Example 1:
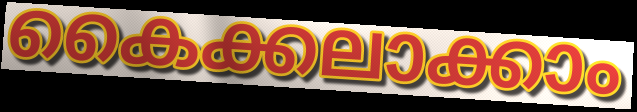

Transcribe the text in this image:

കൈക്കലാക്കാം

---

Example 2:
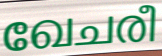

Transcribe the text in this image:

ഖേചരീ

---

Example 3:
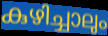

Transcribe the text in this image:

കുഴിച്ചാലും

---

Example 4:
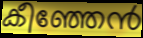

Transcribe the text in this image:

കീഞ്ഞേൻ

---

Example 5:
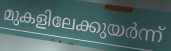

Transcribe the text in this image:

മുകളിലേക്കുയർന്ന്